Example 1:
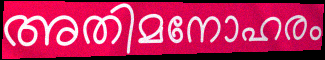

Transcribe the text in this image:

അതിമനോഹരം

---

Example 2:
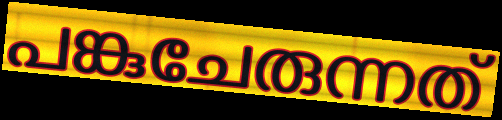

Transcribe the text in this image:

പങ്കുചേരുന്നത്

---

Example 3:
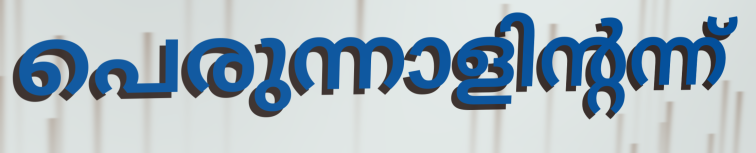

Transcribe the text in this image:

പെരുന്നാളിന്റന്ന്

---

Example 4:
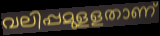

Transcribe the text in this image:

വലിപ്പമുളളതാണ്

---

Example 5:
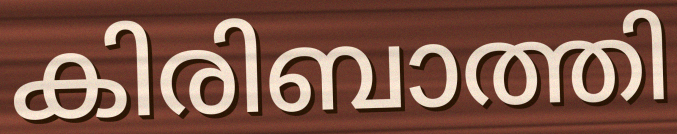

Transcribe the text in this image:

കിരിബാത്തി